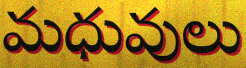
మధువులు